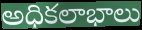
అధికలాభాలు